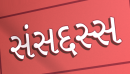
સંસદ્દસ્સ